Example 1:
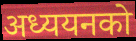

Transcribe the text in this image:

अध्ययनको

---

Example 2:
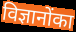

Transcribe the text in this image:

विज्ञानोंका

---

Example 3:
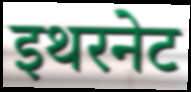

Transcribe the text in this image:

इथरनेट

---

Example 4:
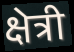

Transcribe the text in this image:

क्षेत्री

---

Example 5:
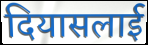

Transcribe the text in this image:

दियासलाई